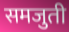
समजुती